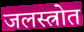
जलस्त्रोत